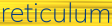
reticulum